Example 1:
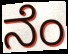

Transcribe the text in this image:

ನೆಂ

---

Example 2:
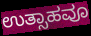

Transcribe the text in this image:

ಉತ್ಸಾಹವೂ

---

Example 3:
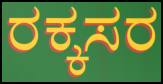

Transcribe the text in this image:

ರಕ್ಕಸರ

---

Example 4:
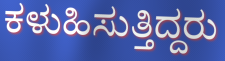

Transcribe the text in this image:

ಕಳುಹಿಸುತ್ತಿದ್ದರು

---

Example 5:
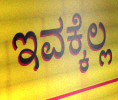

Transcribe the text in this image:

ಇವಕ್ಕೆಲ್ಲ